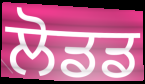
ਲੋਡਡ